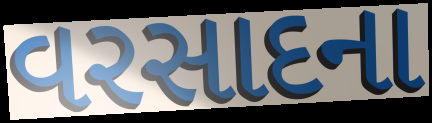
વરસાદના